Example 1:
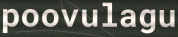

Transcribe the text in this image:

poovulagu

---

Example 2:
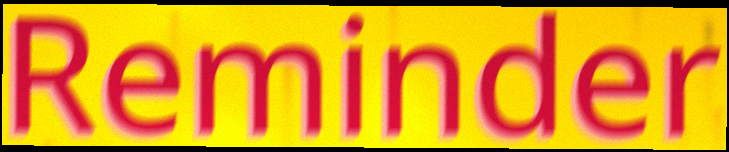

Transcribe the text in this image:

Reminder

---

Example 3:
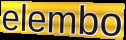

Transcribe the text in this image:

elembo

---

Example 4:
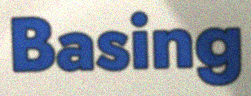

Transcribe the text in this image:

Basing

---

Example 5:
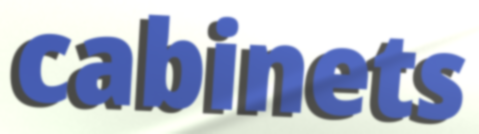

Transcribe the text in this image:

cabinets